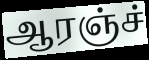
ஆரஞ்ச்